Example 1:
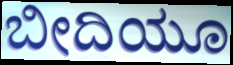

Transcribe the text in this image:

ಬೀದಿಯೂ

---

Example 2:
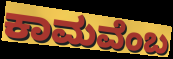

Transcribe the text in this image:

ಕಾಮವೆಂಬ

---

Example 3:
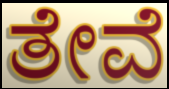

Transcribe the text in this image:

ತೇವೆ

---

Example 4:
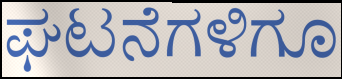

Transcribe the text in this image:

ಘಟನೆಗಳಿಗೂ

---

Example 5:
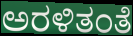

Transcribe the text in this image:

ಅರಳಿತಂತೆ